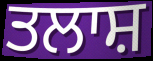
ਤਲਾਸ਼